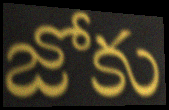
జోకు